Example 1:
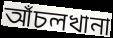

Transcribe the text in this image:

আঁচলখানা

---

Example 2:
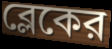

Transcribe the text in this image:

ব্লেকের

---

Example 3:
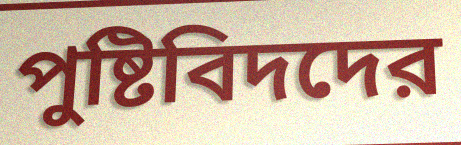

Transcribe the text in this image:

পুষ্টিবিদদের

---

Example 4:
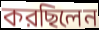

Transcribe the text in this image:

করছিলেন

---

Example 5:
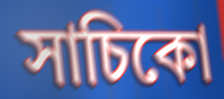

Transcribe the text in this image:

সাচিকো